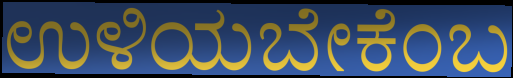
ಉಳಿಯಬೇಕೆಂಬ